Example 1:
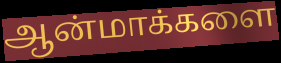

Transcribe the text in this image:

ஆன்மாக்களை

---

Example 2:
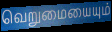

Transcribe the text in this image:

வெறுமையையும்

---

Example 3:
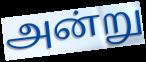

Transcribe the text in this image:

அன்று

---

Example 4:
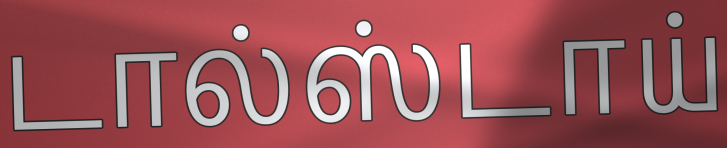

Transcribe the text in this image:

டால்ஸ்டாய்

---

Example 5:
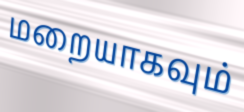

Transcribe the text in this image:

மறையாகவும்